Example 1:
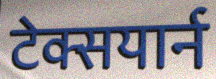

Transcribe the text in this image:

टेक्सयार्न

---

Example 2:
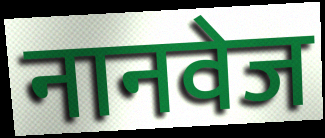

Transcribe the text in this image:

नानवेज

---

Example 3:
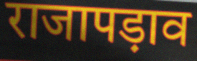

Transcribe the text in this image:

राजापड़ाव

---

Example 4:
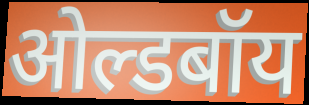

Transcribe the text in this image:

ओल्डबॉय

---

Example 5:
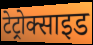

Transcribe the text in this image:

टेट्रोक्साइड